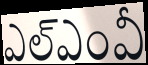
ఎల్ఎంవీ